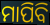
ମାପିବି